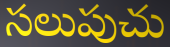
సలుపుచు